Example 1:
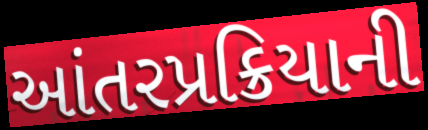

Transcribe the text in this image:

આંતરપ્રક્રિયાની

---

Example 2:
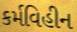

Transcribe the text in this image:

કર્મવિહીન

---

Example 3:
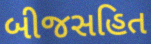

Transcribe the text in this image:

બીજસહિત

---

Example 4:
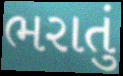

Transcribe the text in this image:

ભરાતું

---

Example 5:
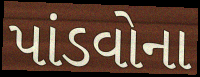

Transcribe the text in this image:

પાંડવોના